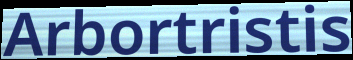
Arbortristis